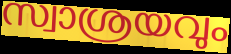
സ്വാശ്രയവും